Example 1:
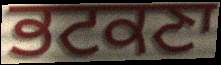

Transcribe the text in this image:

ਭਟਕਣਾ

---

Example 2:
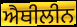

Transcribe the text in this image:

ਐਥੀਲੀਨ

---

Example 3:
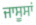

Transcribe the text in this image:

ਜਾਸੂਸਾਂ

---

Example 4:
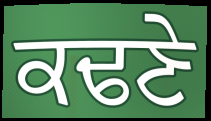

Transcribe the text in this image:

ਕਢਣੇ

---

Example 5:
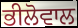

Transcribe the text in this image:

ਭੀਲੋਵਾਲ